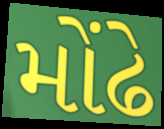
મોંઢે